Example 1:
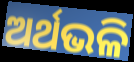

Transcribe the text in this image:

ଅର୍ଥଭଳି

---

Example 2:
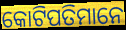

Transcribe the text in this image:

କୋଟିପତିମାନେ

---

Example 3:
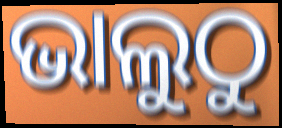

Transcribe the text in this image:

ଭାଲୁଠୁ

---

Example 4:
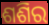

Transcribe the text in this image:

ଶଶିର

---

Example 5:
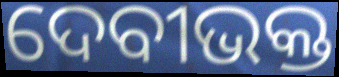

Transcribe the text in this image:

ଦେବୀଭକ୍ତ